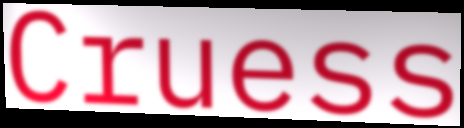
Cruess